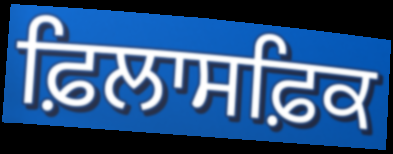
ਫ਼ਿਲਾਸਫ਼ਿਕ